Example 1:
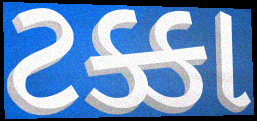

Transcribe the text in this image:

ટક્કા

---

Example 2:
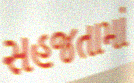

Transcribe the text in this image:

સહજતામાં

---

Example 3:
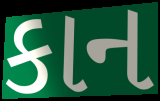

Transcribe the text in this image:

કાન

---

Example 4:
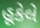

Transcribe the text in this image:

હૂકેલે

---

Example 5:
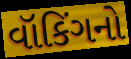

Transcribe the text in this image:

વૉકિંગનો